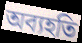
অব্যহতি